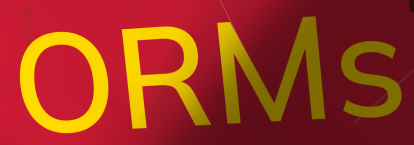
ORMs